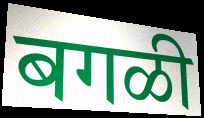
बगळी